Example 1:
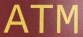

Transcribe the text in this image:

ATM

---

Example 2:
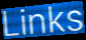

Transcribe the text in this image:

Links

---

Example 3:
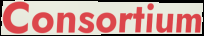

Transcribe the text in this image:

Consortium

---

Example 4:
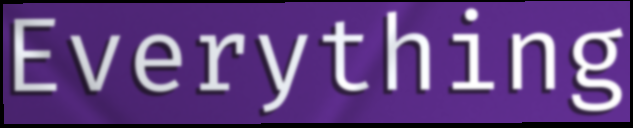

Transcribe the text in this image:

Everything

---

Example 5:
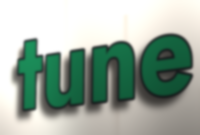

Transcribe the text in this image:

tune